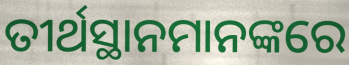
ତୀର୍ଥସ୍ଥାନମାନଙ୍କରେ